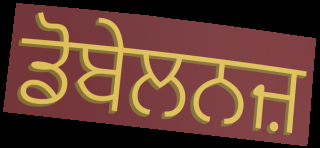
ਡੋਬੇਲਨਜ਼